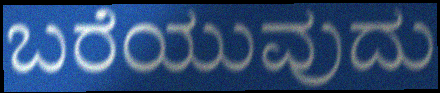
ಬರೆಯುವುದು